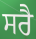
ਸਰੈ